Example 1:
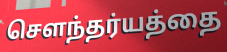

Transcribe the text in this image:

செளந்தர்யத்தை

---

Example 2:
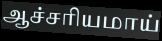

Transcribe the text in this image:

ஆச்சரியமாய்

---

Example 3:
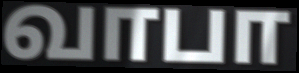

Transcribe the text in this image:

வாபா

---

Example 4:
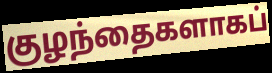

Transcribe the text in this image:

குழந்தைகளாகப்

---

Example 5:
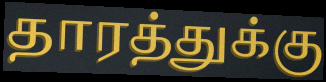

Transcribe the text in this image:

தாரத்துக்கு